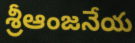
శ్రీఆంజనేయ